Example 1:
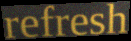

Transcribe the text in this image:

refresh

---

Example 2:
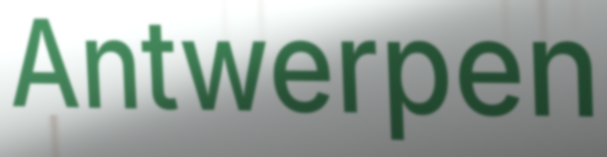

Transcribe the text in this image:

Antwerpen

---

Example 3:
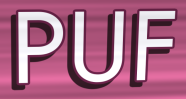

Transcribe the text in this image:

PUF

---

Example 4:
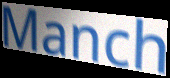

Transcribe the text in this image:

Manch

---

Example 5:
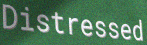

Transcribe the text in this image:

Distressed